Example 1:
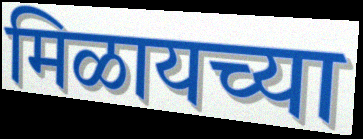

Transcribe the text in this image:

मिळायच्या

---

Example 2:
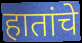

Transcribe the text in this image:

हातांचे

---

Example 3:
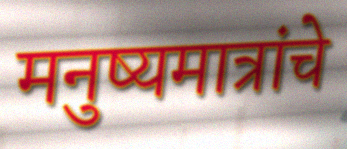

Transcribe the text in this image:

मनुष्यमात्रांचे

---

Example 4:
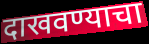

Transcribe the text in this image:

दाखवण्याचा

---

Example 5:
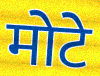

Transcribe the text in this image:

मोटे